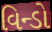
વિન્ડો